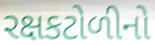
રક્ષકટોળીનો